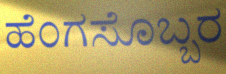
ಹೆಂಗಸೊಬ್ಬರ